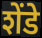
शेंडे